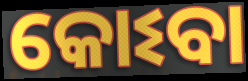
କୋଽବା